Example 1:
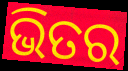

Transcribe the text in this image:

ଭିତର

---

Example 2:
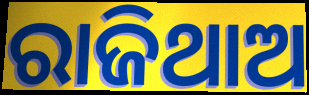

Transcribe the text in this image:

ରାଜିଥାଅ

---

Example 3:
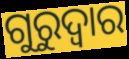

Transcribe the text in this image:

ଗୁରୁଦ୍ଵାର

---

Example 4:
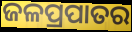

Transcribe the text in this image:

ଜଳପ୍ରପାତର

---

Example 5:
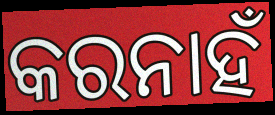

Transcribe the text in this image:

କରନାହଁ